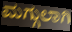
ಮಗ್ಗುಲಾಗಿ